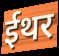
ईथर